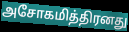
அசோகமித்திரனது